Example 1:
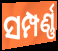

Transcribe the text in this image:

ସମ୍ପର୍ଣ୍ଣ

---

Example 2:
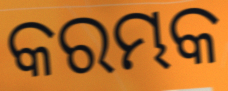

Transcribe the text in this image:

କରମ୍ଭକ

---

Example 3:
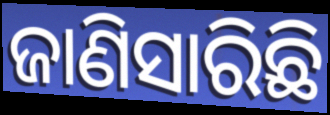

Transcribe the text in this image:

ଜାଣିସାରିଛି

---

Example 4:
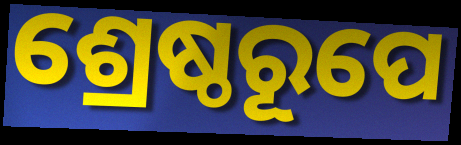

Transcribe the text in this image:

ଶ୍ରେଷ୍ଠରୂପେ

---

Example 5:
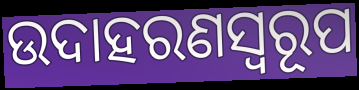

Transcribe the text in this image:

ଉଦାହରଣସ୍ୱରୂପ